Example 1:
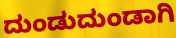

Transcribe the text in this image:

ದುಂಡುದುಂಡಾಗಿ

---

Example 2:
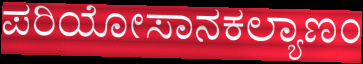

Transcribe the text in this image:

ಪರಿಯೋಸಾನಕಲ್ಯಾಣಂ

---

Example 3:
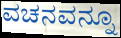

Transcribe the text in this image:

ವಚನವನ್ನೂ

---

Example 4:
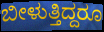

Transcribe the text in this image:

ಬೀಳುತ್ತಿದ್ದರೂ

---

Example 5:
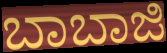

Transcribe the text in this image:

ಬಾಬಾಜಿ